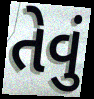
તેવું